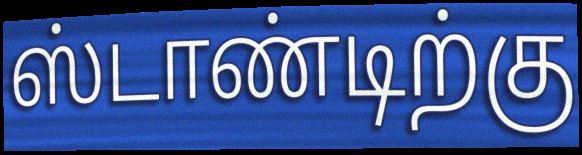
ஸ்டாண்டிற்கு